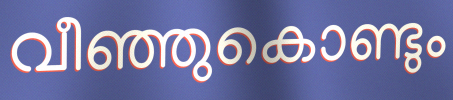
വീഞ്ഞുകൊണ്ടും